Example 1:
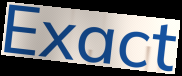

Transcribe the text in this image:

Exact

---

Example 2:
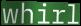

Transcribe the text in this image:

whirl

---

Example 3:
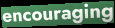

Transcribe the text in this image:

encouraging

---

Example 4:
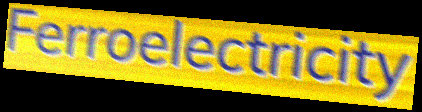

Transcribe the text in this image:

Ferroelectricity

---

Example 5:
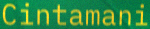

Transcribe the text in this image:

Cintamani